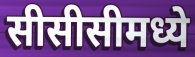
सीसीसीमध्ये